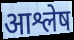
आश्लेष